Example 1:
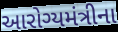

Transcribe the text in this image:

આરોગ્યમંત્રીના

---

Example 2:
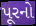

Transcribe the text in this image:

પૂરનો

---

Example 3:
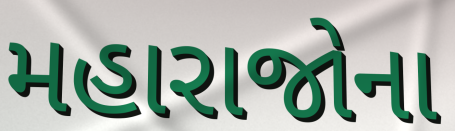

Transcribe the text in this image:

મહારાજોના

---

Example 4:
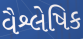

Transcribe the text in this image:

વૈશ્લેષિક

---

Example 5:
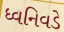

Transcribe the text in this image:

ધ્વનિવડે